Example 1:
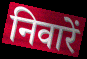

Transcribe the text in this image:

निवारें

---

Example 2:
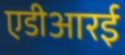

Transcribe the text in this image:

एडीआरई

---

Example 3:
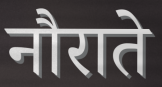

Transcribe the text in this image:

नौराते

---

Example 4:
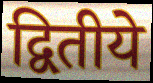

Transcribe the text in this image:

द्वितीये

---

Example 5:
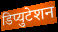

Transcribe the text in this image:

डिप्युटेशन